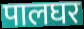
पालघर